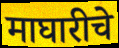
माघारीचे